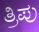
ತ್ರಿಪು